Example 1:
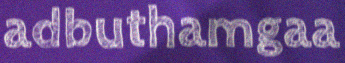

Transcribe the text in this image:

adbuthamgaa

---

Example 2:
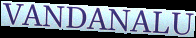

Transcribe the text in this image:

VANDANALU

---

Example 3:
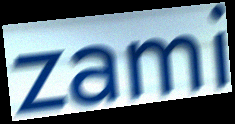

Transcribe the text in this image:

zami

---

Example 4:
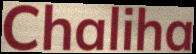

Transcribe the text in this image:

Chaliha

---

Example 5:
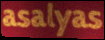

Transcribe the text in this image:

asalyas